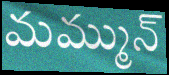
మమ్మున్